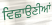
ਵਿਛਾਉਣੀਆਂ